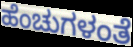
ಹೆಂಚುಗಳಂತೆ